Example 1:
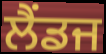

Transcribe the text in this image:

ਲੈਂਡਜ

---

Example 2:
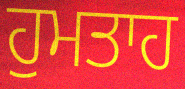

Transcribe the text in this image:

ਹੁਮਤਾਹ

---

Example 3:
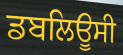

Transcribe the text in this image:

ਡਬਲਿਊਸੀ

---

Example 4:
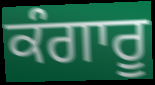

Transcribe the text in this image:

ਕੰਗਾਰੂ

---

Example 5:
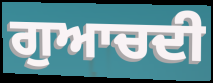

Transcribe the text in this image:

ਗੁਆਚਦੀ